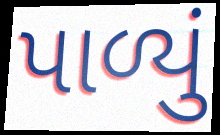
પાળ્યું